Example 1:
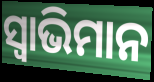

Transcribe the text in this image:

ସ୍ୱାଭିମାନ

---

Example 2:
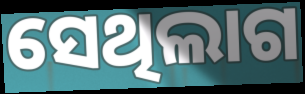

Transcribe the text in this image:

ସେଥିଲାଗ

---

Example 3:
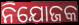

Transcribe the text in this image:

ନିଯୋଜକ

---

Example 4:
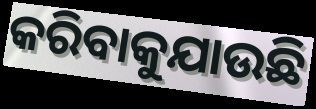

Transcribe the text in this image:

କରିବାକୁଯାଉଛି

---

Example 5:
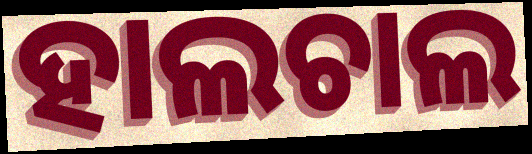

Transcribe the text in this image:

ହାଲଚାଲ